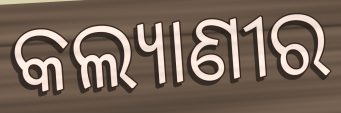
କଲ୍ୟାଣୀର